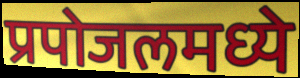
प्रपोजलमध्ये